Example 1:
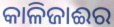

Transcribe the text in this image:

କାଳିଜାଈର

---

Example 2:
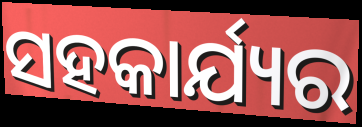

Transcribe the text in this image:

ସହକାର୍ଯ୍ୟର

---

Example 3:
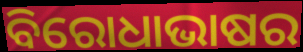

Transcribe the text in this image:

ବିରୋଧାଭାଷର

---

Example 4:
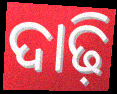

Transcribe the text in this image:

ଦାଢ଼ି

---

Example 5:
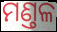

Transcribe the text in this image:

ମଣ୍ତଳ